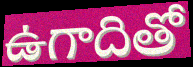
ఉగాదితో